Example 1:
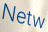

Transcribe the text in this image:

Netw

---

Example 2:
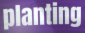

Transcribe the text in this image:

planting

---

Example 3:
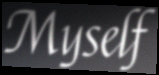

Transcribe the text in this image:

Myself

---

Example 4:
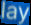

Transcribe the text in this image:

lay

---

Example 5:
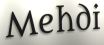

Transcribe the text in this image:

Mehdi